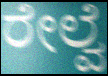
ರೇಲ್ವೆ